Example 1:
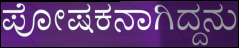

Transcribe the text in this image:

ಪೋಷಕನಾಗಿದ್ದನು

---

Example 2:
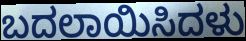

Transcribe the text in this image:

ಬದಲಾಯಿಸಿದಳು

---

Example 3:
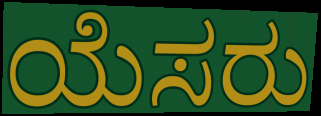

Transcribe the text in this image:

ಯೆಸರು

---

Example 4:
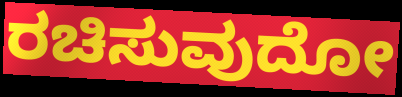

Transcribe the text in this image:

ರಚಿಸುವುದೋ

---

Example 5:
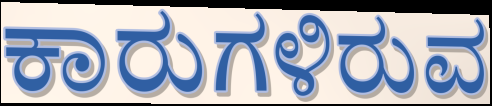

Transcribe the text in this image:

ಕಾರುಗಳಿರುವ